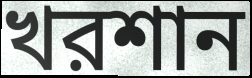
খরশান